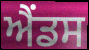
ਐਂਡਸ